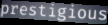
prestigious